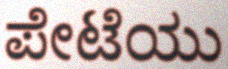
ಪೇಟೆಯು